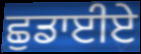
ਛੁਡਾਈਏ